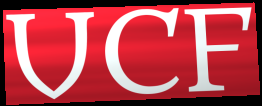
UCF